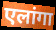
एलांगा